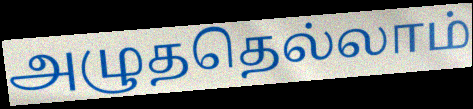
அழுததெல்லாம்